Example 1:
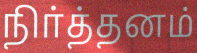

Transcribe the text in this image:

நிர்த்தனம்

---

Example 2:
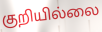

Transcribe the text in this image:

குறியில்லை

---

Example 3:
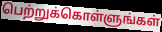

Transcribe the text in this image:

பெற்றுக்கொள்ளுங்கள்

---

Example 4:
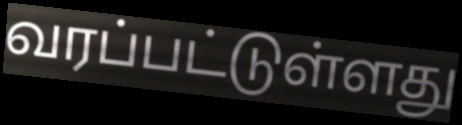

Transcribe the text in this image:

வரப்பட்டுள்ளது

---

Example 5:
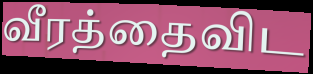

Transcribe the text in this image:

வீரத்தைவிட